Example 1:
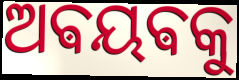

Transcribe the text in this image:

ଅଵୟଵକୁ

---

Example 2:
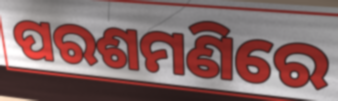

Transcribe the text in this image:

ପରଶମଣିରେ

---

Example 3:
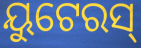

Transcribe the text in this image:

ୟୁଟେରସ୍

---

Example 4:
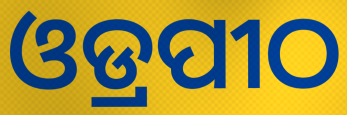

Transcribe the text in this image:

ଓଡ୍ରପୀଠ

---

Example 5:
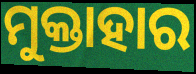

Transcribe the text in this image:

ମୁକ୍ତାହାର